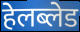
हेलब्लेड